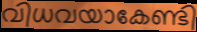
വിധവയാകേണ്ടി